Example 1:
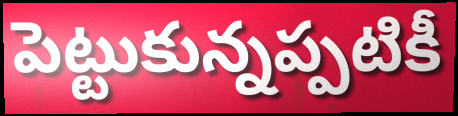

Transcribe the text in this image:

పెట్టుకున్నప్పటికీ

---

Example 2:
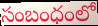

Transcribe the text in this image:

సంబంధంలో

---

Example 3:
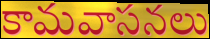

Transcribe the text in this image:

కామవాసనలు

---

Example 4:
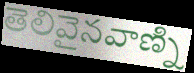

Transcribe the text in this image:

తెలివైనవాణ్ని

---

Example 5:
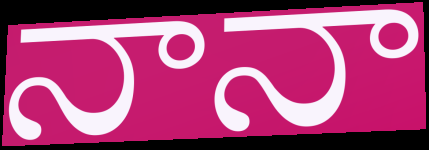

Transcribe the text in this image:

నానా